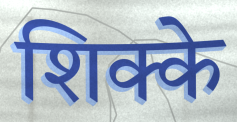
शिक्के